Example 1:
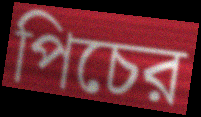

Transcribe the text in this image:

পিচের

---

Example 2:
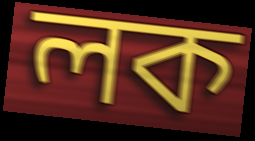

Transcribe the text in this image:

লক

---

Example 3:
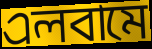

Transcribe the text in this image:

এলবামে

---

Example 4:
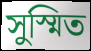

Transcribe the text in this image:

সুস্মিত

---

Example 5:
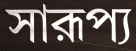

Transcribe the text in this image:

সারূপ্য